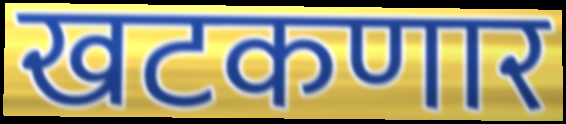
खटकणार